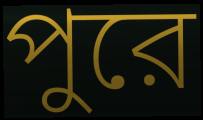
পুরে